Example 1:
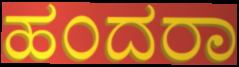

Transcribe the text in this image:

ಹಂದರಾ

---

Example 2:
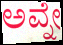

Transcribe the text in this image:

ಅವ್ನೇ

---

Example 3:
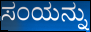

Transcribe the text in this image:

ಸಂಯನ್ನು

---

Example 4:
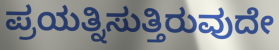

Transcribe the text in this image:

ಪ್ರಯತ್ನಿಸುತ್ತಿರುವುದೇ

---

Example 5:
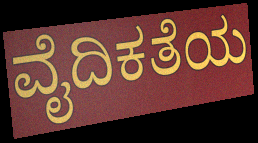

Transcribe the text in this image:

ವೈದಿಕತೆಯ